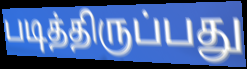
படித்திருப்பது